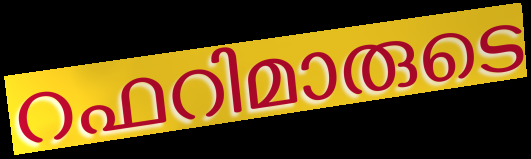
റഫറിമാരുടെ